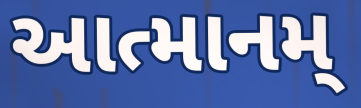
આત્માનમ્